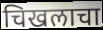
चिखलाचा